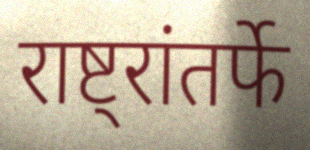
राष्ट्रांतर्फे